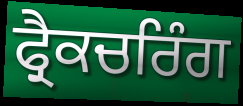
ਫ੍ਰੈਕਚਰਿੰਗ